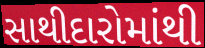
સાથીદારોમાંથી